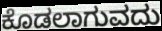
ಕೊಡಲಾಗುವದು